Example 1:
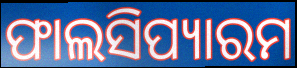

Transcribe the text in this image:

ଫାଲସିପ୍ୟାରମ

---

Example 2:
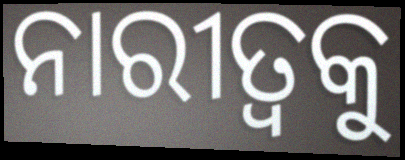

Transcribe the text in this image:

ନାରୀତ୍ୱକୁ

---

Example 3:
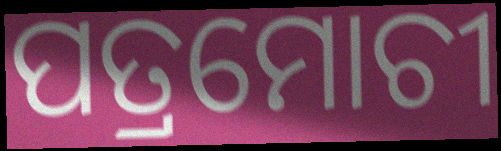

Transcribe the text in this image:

ପତ୍ରମୋଚୀ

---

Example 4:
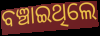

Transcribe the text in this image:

ବଞ୍ଚାଇଥିଲେ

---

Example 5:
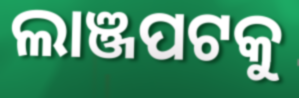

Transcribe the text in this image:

ଲାଞ୍ଜପଟକୁ